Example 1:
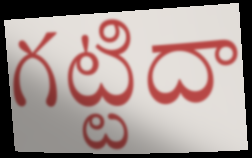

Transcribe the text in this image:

గట్టిదా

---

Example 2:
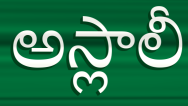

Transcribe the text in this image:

అస్లాలీ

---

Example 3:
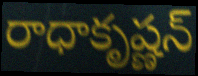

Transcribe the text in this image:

రాధాకృష్ణన్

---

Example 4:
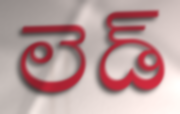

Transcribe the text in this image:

లెడ్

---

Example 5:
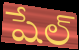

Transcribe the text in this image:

షేల్